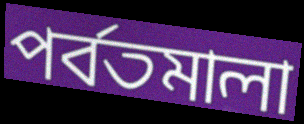
পৰ্বতমালা